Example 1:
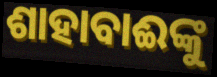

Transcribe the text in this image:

ଶାହାବାଈଙ୍କୁ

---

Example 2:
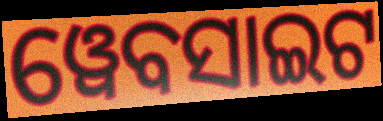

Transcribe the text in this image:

ୱେବସାଇଟ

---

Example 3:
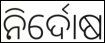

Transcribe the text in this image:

ନିର୍ଦୋଷ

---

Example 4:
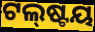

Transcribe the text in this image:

ଟଲ୍‌ଷ୍ଟୟ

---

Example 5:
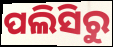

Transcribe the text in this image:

ପଲିସିରୁ